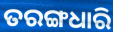
ତରଙ୍ଗଧାରି